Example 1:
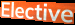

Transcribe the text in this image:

Elective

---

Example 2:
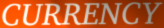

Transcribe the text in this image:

CURRENCY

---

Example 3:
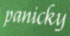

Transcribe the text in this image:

panicky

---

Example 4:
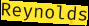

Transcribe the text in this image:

Reynolds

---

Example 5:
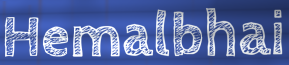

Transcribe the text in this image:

Hemalbhai